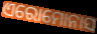
ଏରୋମୋନାସ